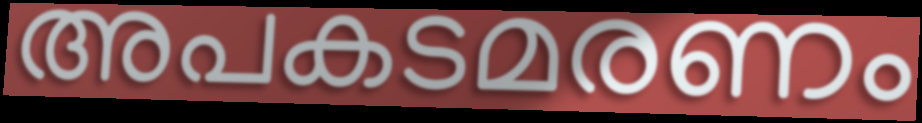
അപകടമരണം